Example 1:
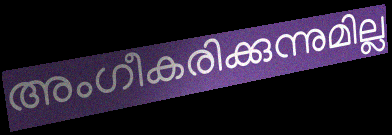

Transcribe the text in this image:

അംഗീകരിക്കുന്നുമില്ല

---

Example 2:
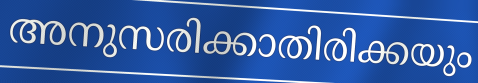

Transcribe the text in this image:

അനുസരിക്കാതിരിക്കയും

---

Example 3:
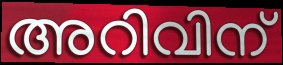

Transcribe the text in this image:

അറിവിന്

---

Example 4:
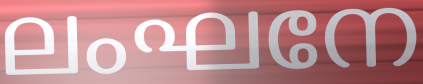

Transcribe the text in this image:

ലംഘനേ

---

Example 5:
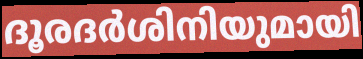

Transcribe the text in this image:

ദൂരദർശിനിയുമായി